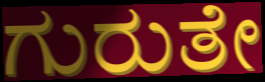
ಗುರುತೇ